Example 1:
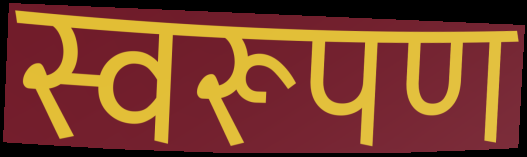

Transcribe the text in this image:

स्वरूपण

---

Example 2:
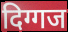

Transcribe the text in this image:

दिग्गज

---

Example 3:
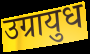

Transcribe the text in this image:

उग्रायुध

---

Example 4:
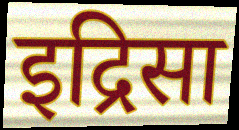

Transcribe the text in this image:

इद्रिसा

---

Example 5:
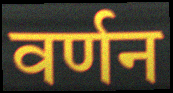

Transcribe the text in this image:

वर्णन